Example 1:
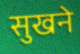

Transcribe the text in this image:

सुखने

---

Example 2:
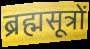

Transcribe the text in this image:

ब्रह्मसूत्रों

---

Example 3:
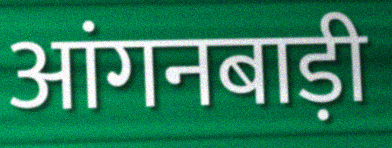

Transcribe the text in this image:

आंगनबाड़ी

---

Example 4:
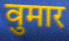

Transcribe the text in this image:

वुमार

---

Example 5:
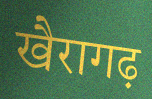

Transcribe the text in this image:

खैरागढ़